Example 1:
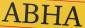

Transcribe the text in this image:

ABHA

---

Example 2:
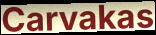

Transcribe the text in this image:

Carvakas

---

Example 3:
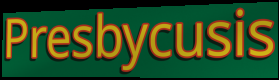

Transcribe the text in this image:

Presbycusis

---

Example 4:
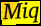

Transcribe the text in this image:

Miq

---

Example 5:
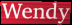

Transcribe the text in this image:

Wendy